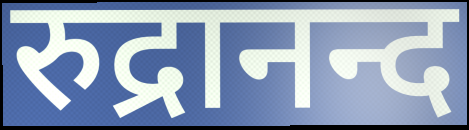
रुद्रानन्द